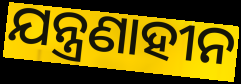
ଯନ୍ତ୍ରଣାହୀନ